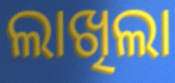
ଲାଖିଲା